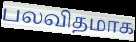
பலவிதமாக